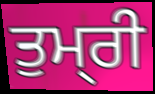
ਤੁਮ੍‍ਰੀ